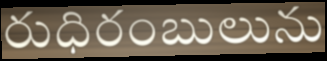
రుధిరంబులును